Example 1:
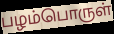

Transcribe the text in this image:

பழம்பொருள்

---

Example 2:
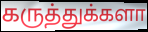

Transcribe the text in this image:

கருத்துக்களா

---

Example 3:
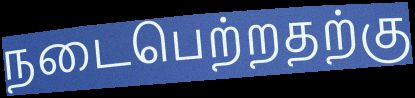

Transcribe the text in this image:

நடைபெற்றதற்கு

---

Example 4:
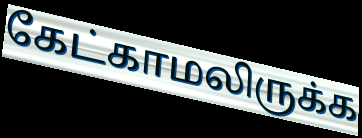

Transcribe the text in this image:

கேட்காமலிருக்க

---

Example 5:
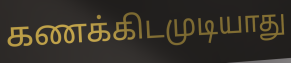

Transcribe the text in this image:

கணக்கிடமுடியாது